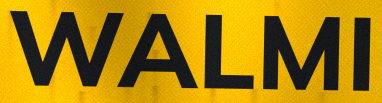
WALMI